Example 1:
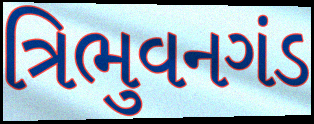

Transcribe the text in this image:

ત્રિભુવનગંડ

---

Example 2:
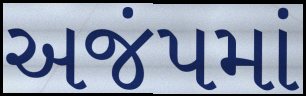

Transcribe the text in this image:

અજંપમાં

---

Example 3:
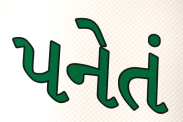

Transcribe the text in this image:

પનેતં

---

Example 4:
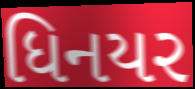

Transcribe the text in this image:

ધિનયર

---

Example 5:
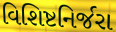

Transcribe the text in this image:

વિશિષ્ટનિર્જરા